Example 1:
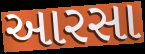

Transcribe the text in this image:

આરસા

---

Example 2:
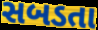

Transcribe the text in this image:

સબડતા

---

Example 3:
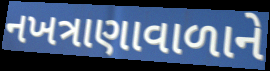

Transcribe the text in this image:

નખત્રાણાવાળાને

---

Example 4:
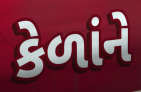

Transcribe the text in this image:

કેળાંને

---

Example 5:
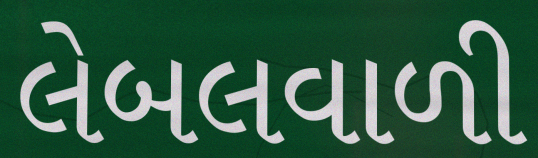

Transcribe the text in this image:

લેબલવાળી